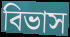
বিভাস